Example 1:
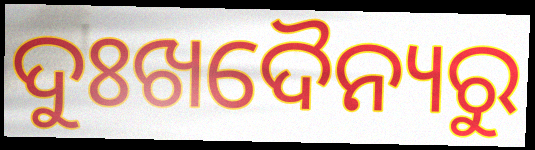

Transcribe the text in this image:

ଦୁଃଖଦୈନ୍ୟରୁ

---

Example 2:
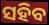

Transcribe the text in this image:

ସହିବ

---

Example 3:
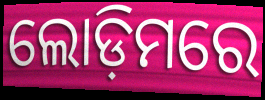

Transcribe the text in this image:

ଲୋଡ଼ିମରେ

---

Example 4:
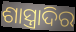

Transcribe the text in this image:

ଶାସ୍ତ୍ରାଦିର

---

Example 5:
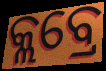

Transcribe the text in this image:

କ୍ଲବ୍ରେ